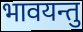
भावयन्तु